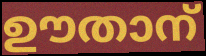
ഊതാന്